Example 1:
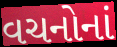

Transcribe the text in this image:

વચનોનાં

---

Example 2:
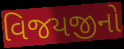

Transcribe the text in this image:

વિજયજીનો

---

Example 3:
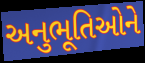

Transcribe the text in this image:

અનુભૂતિઓને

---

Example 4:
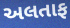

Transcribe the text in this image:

અલતાફ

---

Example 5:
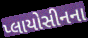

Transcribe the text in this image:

પ્લાયોસીનના